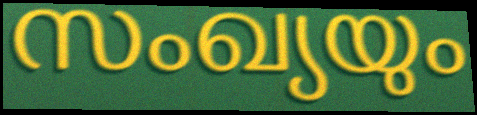
സംഖ്യയും